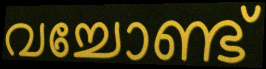
വച്ചോണ്ട്